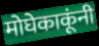
मोघेकाकूंनी